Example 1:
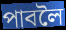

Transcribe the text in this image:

পাবলৈ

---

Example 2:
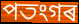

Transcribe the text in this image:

পতংগৰ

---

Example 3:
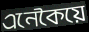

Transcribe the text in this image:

এনেকৈয়ে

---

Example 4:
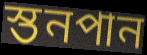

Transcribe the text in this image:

স্তনপান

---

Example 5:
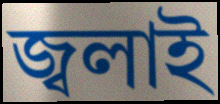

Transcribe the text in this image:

জ্বলাই